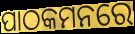
ପାଠକମନରେ